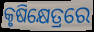
କୃଷିକ୍ଷେତ୍ରରେ